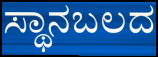
ಸ್ಥಾನಬಲದ